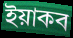
ইয়াকব